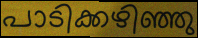
പാടിക്കഴിഞ്ഞു